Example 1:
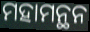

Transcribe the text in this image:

ମହାମନ୍ଥନ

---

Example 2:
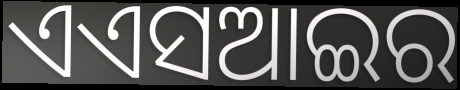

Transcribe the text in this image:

ଏଏସଆଇର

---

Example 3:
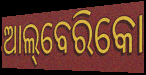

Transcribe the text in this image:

ଆଲ୍‌ବେରିକୋ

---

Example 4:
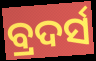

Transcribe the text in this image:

ବ୍ରଦର୍ସ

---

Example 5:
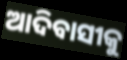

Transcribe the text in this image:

ଆଦିବାସୀକୁ